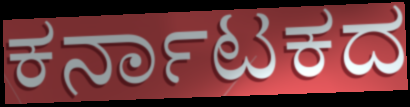
ಕರ್ನಾಟಕದ